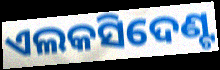
ଏଲକସିଦେଣ୍ଟ